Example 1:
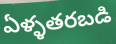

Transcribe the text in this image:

ఏళ్ళతరబడి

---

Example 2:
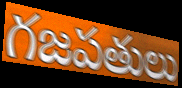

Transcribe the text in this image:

గజపతులు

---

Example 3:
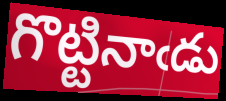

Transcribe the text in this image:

గొట్టినాఁడు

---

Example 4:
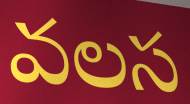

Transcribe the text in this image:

వలస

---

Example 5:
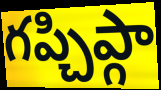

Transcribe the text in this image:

గప్చిప్గా